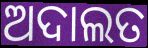
ଅଦାଲତ